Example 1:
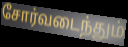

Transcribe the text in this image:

சோர்வடைந்தும்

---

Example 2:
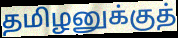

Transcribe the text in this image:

தமிழனுக்குத்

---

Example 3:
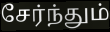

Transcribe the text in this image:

சேர்ந்தும்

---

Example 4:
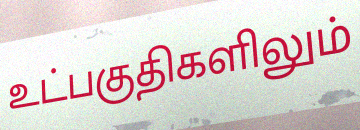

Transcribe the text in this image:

உட்பகுதிகளிலும்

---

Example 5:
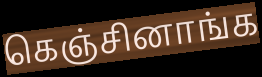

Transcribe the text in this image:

கெஞ்சினாங்க